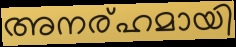
അനര്ഹമായി